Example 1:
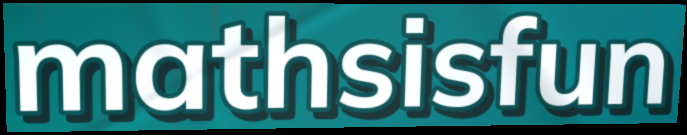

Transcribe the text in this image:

mathsisfun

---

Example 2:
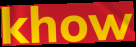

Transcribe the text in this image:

khow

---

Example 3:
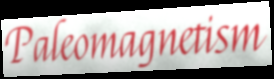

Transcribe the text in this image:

Paleomagnetism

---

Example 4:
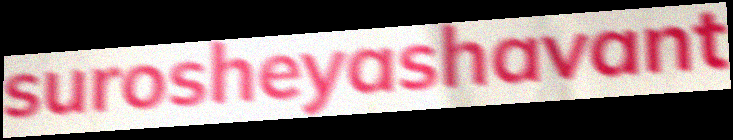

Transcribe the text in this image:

surosheyashavant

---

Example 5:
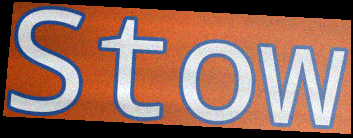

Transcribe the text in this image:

Stow